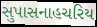
સુપાસનાહચરિય